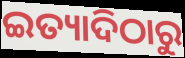
ଇତ୍ୟାଦିଠାରୁ